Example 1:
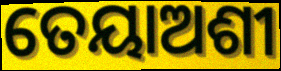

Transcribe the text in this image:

ତେୟାଅଶୀ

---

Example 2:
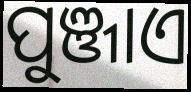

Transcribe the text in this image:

ପୁଞ୍ଜାଏ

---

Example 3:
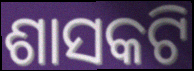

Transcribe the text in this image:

ଶାସକଟି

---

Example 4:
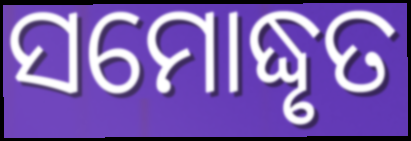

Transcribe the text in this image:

ସମୋଦ୍ଧୃତ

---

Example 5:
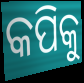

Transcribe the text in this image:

କପିକୁ